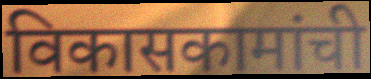
विकासकामांची